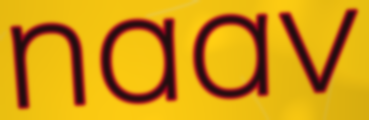
naav